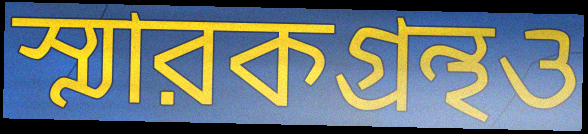
স্মারকগ্রন্থও